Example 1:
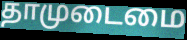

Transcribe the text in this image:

தாமுடைமை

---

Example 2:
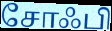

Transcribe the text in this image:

சோஃபி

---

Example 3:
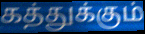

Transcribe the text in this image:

கத்துக்கும்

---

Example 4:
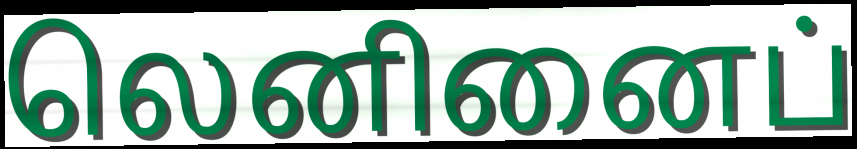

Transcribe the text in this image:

லெனினைப்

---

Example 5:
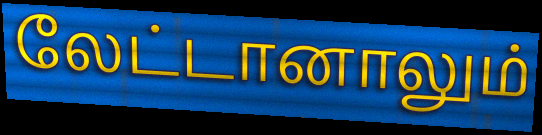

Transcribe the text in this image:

லேட்டானாலும்